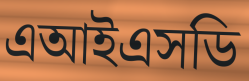
এআইএসডি